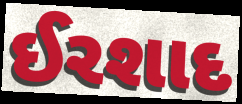
ઈરશાદ